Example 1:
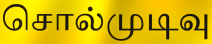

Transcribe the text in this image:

சொல்முடிவு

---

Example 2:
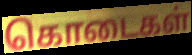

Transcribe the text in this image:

கொடைகள்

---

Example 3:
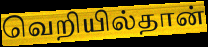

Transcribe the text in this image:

வெறியில்தான்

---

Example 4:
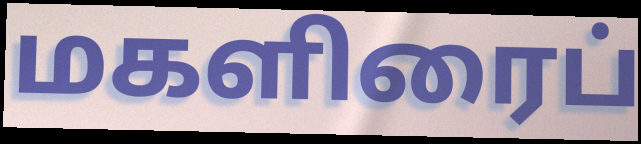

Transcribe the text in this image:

மகளிரைப்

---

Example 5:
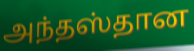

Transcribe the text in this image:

அந்தஸ்தான